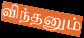
விந்தனும்